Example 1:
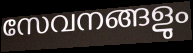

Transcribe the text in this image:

സേവനങ്ങളും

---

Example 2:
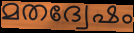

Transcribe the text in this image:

മതദ്വേഷം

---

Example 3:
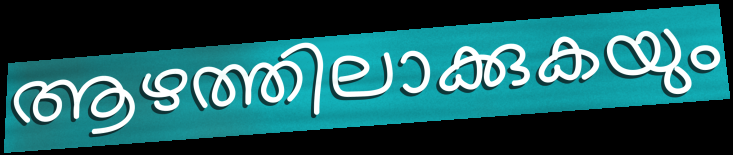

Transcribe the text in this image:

ആഴത്തിലാക്കുകയും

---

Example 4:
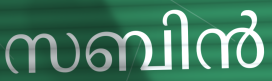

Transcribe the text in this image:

സബിൻ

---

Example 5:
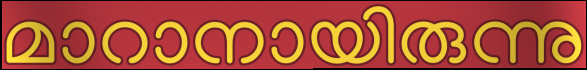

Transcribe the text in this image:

മാറാനായിരുന്നു